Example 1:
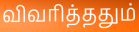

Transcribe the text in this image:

விவரித்ததும்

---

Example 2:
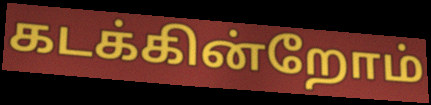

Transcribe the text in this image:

கடக்கின்றோம்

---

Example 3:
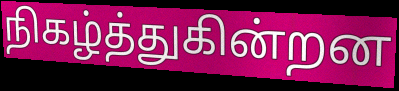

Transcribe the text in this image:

நிகழ்த்துகின்றன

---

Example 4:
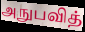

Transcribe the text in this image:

அநுபவித்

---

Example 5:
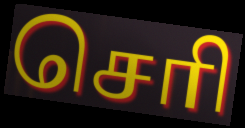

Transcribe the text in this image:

செரி